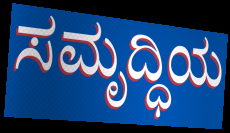
ಸಮೃದ್ಧಿಯ